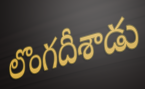
లొంగదీశాడు